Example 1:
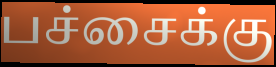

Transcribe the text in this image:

பச்சைக்கு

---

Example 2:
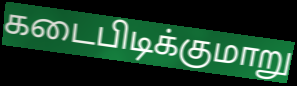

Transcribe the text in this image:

கடைபிடிக்குமாறு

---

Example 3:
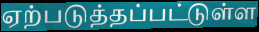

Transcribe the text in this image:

ஏற்படுத்தப்பட்டுள்ள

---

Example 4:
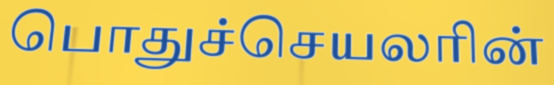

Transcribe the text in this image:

பொதுச்செயலரின்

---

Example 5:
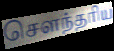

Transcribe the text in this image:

சௌந்தரிய